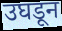
उघडून